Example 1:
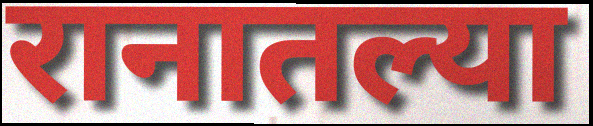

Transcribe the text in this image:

रानातल्या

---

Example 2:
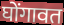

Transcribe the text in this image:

घोंगावत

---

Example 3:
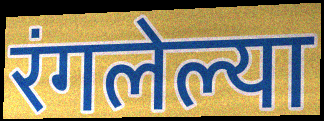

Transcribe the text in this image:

रंगलेल्या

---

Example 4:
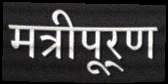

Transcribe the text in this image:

मत्रीपूर्ण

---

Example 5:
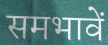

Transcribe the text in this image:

समभावें